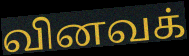
வினவக்